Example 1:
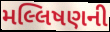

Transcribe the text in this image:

મલ્લિષણની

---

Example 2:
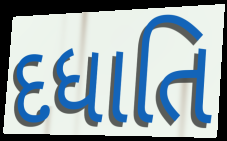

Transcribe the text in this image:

દધાતિ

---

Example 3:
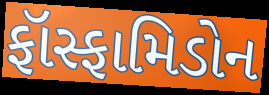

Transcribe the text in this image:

ફૉસ્ફામિડોન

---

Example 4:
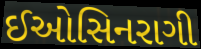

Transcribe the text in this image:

ઈઓસિનરાગી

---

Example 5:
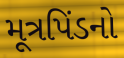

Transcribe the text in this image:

મૂત્રપિંડનો